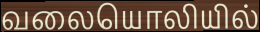
வலையொலியில்